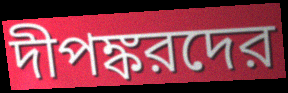
দীপঙ্করদের